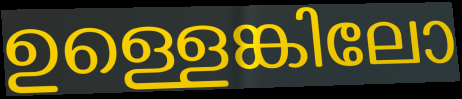
ഉള്ളെങ്കിലോ